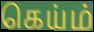
கெய்ம்